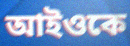
আইওকে